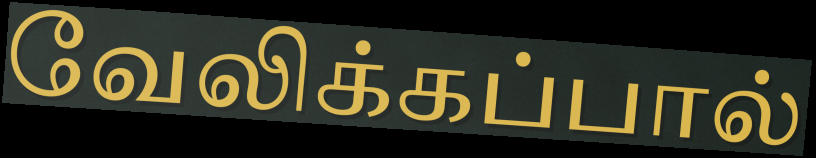
வேலிக்கப்பால்